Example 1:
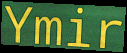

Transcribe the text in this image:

Ymir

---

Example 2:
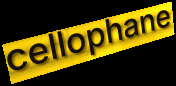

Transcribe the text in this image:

cellophane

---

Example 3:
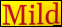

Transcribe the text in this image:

Mild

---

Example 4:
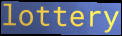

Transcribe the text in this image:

lottery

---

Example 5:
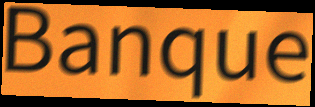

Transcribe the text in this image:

Banque